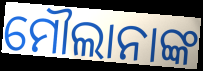
ମୌଲାନାଙ୍କ